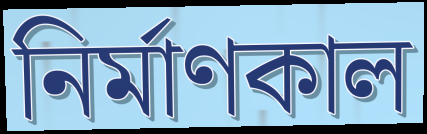
নির্মাণকাল